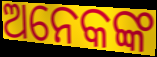
ଅନେକଙ୍କ